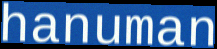
hanuman